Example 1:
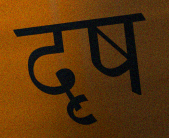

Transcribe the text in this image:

दृष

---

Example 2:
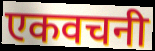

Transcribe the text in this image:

एकवचनी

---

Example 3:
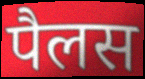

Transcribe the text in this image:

पैलस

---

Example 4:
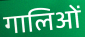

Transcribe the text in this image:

गालिओं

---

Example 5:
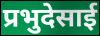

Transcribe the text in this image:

प्रभुदेसाई